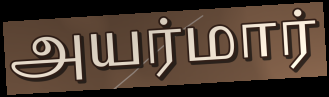
அயர்மார்